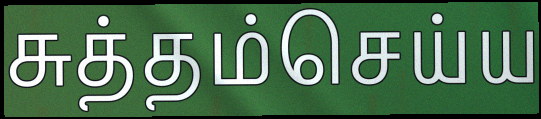
சுத்தம்செய்ய